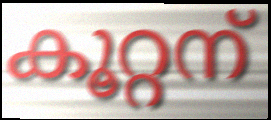
കൂറ്റന്